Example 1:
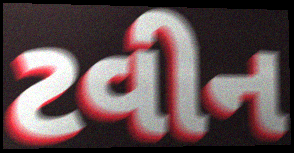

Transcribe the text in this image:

ટવીન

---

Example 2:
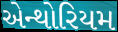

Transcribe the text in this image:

એન્થોરિયમ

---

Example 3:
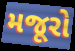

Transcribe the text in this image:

મજૂરો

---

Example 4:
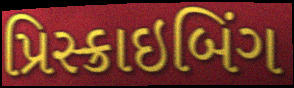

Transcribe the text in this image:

પ્રિસ્ક્રાઇબિંગ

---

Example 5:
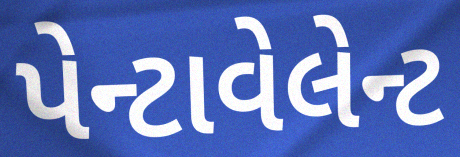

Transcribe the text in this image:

પેન્ટાવેલેન્ટ